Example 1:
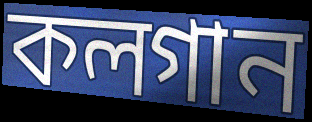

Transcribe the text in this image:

কলগান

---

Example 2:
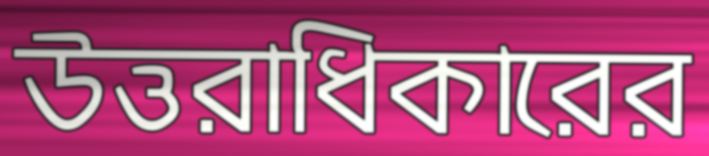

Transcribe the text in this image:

উত্তরাধিকারের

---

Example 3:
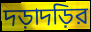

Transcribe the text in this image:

দড়াদড়ির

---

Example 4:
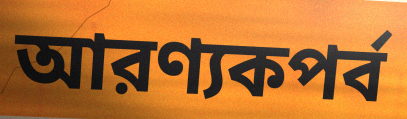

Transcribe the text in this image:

আরণ্যকপর্ব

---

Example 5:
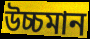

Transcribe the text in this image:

উচ্চমান